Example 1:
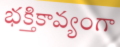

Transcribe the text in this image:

భక్తికావ్యంగా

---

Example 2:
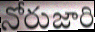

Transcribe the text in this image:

నోరుజారి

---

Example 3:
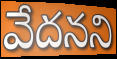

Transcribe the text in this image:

వేదనని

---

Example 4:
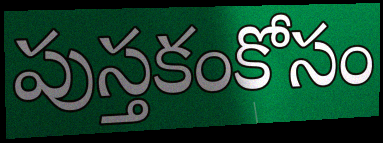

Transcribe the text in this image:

పుస్తకంకోసం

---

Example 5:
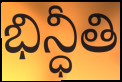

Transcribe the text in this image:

భిన్ధీతి